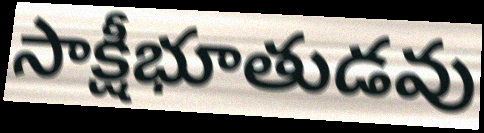
సాక్షీభూతుడవు